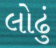
લોઢું